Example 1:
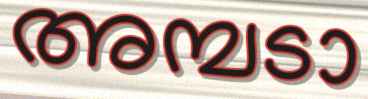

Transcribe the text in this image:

അമ്പടാ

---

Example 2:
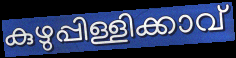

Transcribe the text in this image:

കുഴുപ്പിള്ളിക്കാവ്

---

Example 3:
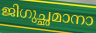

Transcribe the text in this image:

ജിഗുച്ഛമാനാ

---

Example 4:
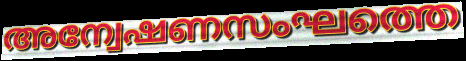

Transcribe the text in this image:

അന്വേഷണസംഘത്തെ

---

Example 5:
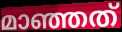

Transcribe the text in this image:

മാഞ്ഞത്